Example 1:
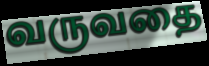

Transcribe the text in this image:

வருவதை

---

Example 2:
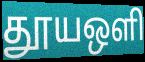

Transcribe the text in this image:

தூயஒளி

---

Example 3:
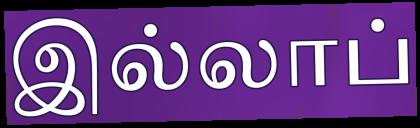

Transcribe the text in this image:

இல்லாப்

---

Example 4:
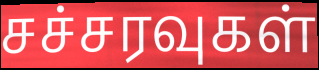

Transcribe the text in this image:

சச்சரவுகள்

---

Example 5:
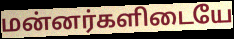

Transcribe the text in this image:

மன்னர்களிடையே